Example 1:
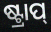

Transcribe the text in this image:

ଷ୍ଟ୍ରାପ୍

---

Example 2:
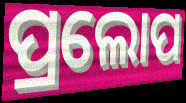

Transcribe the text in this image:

ପ୍ରଲୋପ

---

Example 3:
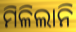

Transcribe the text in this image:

ମିଳିଲାନି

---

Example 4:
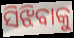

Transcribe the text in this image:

ସିଝିବାକୁ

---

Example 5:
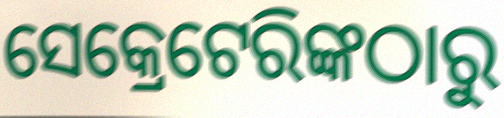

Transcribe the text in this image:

ସେକ୍ରେଟେରିଙ୍କଠାରୁ